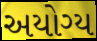
અયોગ્ય